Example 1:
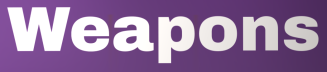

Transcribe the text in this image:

Weapons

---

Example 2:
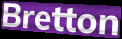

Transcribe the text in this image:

Bretton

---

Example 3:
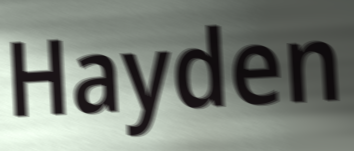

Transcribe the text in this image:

Hayden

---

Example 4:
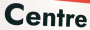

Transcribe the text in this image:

Centre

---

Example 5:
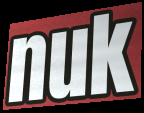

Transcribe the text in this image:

nuk